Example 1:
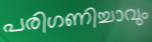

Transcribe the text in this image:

പരിഗണിച്ചാവും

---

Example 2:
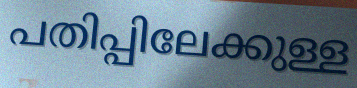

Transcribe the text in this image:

പതിപ്പിലേക്കുള്ള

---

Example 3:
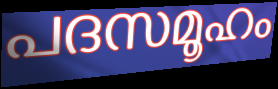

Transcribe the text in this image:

പദസമൂഹം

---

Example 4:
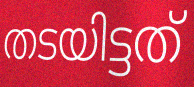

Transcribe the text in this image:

തടയിട്ടത്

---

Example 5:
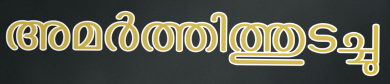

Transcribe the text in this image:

അമർത്തിത്തുടച്ചു